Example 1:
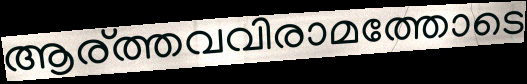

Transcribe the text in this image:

ആര്ത്തവവിരാമത്തോടെ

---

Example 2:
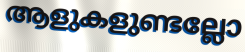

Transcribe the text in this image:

ആളുകളുണ്ടല്ലോ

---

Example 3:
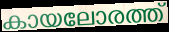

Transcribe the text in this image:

കായലോരത്ത്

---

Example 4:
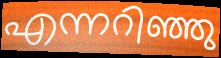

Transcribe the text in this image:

എന്നറിഞ്ഞു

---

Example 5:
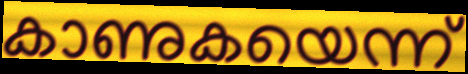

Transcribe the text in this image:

കാണുകയെന്ന്